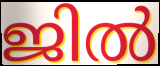
ജിൽ